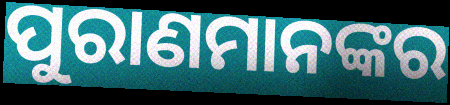
ପୁରାଣମାନଙ୍କର